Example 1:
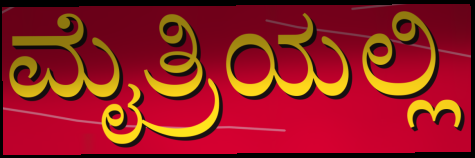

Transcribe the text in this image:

ಮೈತ್ರಿಯಲ್ಲಿ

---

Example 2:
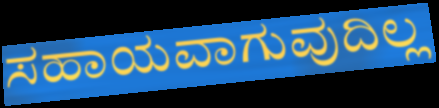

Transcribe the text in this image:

ಸಹಾಯವಾಗುವುದಿಲ್ಲ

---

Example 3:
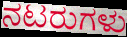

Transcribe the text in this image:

ನಟರುಗಳು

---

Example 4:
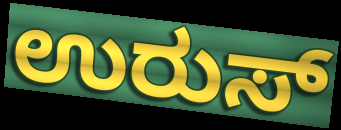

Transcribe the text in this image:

ಉರುಸ್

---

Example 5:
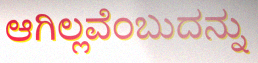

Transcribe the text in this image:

ಆಗಿಲ್ಲವೆಂಬುದನ್ನು